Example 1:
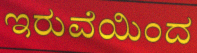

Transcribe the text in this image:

ಇರುವೆಯಿಂದ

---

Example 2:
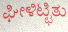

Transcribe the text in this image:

ಘೀಳಿಟ್ಟಿತು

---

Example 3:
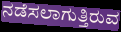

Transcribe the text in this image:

ನಡೆಸಲಾಗುತ್ತಿರುವ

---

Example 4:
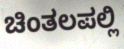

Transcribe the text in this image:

ಚಿಂತಲಪಲ್ಲಿ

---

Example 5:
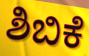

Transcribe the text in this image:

ಶಿಬಿಕೆ